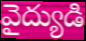
వైద్యుడి